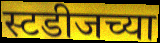
स्टडीजच्या